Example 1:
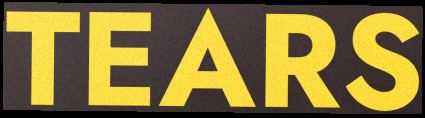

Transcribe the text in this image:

TEARS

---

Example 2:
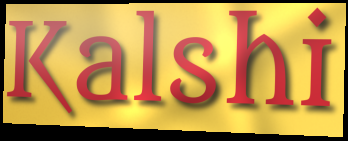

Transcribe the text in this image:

Kalshi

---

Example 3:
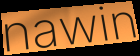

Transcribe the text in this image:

nawin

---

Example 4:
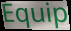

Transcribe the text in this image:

Equip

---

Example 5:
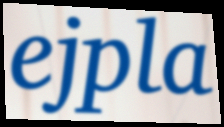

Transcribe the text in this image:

ejpla